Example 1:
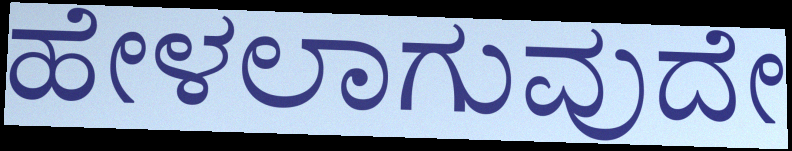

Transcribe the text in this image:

ಹೇಳಲಾಗುವುದೇ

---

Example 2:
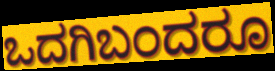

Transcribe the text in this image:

ಒದಗಿಬಂದರೂ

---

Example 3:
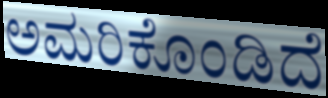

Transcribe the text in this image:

ಅಮರಿಕೊಂಡಿದೆ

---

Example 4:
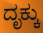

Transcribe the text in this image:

ದೃಕ್ಕು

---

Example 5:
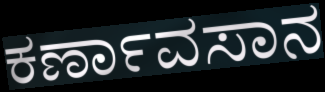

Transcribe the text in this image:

ಕರ್ಣಾವಸಾನ